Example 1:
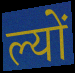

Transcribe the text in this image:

ल्यों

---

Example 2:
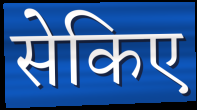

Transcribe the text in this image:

सेकिए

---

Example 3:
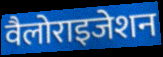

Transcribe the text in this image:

वैलोराइजेशन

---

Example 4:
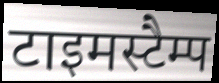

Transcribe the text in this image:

टाइमस्टैम्प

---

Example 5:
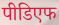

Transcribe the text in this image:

पीडिएफ